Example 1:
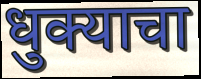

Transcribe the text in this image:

धुक्याचा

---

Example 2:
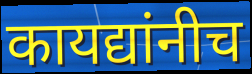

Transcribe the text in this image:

कायद्यांनीच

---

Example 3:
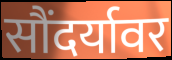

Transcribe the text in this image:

सौंदर्यावर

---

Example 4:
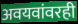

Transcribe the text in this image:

अवयवांवरही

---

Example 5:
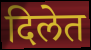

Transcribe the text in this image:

दिलेत